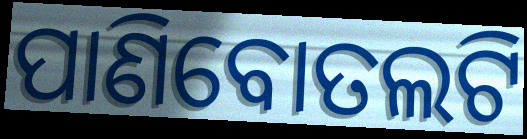
ପାଣିବୋତଲଟି